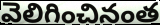
వెలిగించినంత